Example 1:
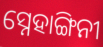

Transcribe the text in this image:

ସ୍ନେହାଙ୍ଗିନୀ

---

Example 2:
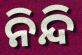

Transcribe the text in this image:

ନିନ୍ଦି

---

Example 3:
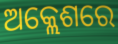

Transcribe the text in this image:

ଅକ୍ଲେଶରେ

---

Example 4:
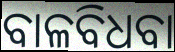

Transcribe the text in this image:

ବାଳବିଧବା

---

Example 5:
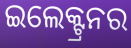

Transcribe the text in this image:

ଇଲେକ୍ଟ୍ରନର